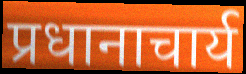
प्रधानाचार्य